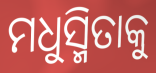
ମଧୁସ୍ମିତାକୁ